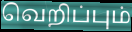
வெறிப்பும்